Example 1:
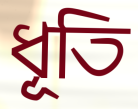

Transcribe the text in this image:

ধূতি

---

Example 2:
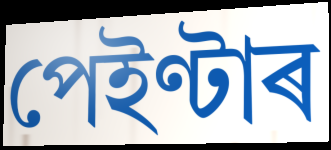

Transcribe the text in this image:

পেইণ্টাৰ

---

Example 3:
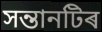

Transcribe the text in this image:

সন্তানটিৰ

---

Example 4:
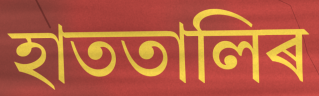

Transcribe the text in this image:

হাততালিৰ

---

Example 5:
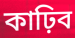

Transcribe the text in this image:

কাঢ়িব